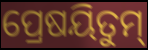
ପ୍ରେଷୟିତୁମ୍